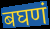
बघणं